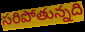
సరిపోతున్నది